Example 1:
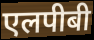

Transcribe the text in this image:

एलपीबी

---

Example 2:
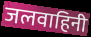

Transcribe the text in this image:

जलवाहिनी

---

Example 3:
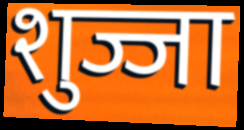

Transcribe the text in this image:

शुज्जा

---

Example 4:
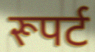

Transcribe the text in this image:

रूपर्ट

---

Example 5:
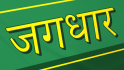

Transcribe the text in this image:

जगधार